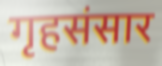
गृहसंसार